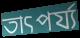
তাৎপৰ্য্য